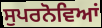
ਸੁਪਰਨੋਵਿਆਂ